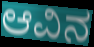
ಆವಿನ